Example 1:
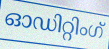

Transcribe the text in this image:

ഓഡിറ്റിംഗ്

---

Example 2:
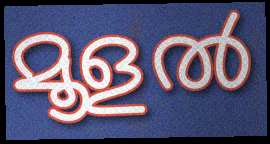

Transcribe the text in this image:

മൂളൽ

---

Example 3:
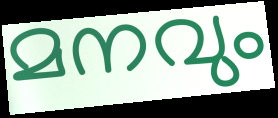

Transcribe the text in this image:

മനവും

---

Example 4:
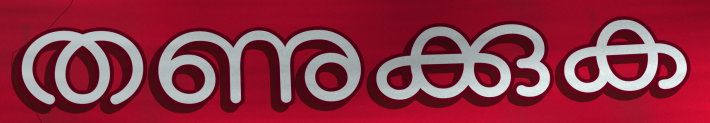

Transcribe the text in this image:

തണുക്കുക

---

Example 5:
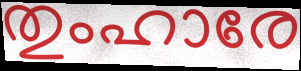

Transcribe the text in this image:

തുംഹാരേ